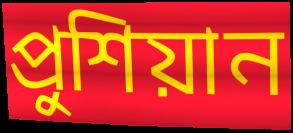
প্রুশিয়ান